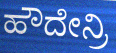
ಹೌದೇನ್ರಿ